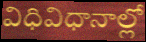
విధివిధానాల్లో